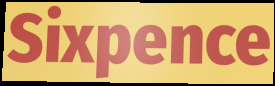
Sixpence